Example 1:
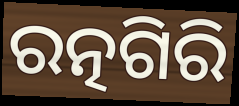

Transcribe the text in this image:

ରତ୍ନଗିରି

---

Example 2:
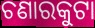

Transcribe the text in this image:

ଚଣାରକୁଟା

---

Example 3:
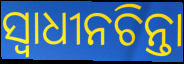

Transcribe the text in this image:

ସ୍ଵାଧୀନଚିନ୍ତା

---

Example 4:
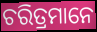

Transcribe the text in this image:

ଚରିତ୍ରମାନେ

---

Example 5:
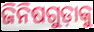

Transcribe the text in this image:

ଜିନିଷଗୁଡ଼ାକୁ